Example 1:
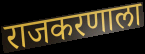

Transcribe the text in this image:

राजकरणाला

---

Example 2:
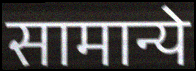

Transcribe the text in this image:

सामान्ये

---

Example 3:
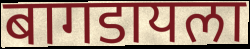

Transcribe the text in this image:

बागडायला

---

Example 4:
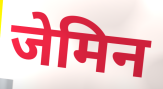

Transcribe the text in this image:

जेमिन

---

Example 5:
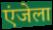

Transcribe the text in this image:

एंजेला